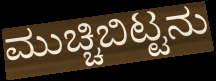
ಮುಚ್ಚಿಬಿಟ್ಟನು